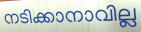
നടിക്കാനാവില്ല